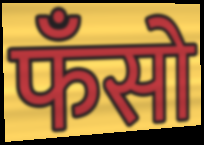
फँसो